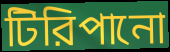
টিরিপানো